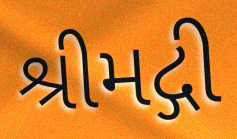
શ્રીમદ્ગી